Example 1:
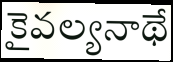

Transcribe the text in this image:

కైవల్యనాథే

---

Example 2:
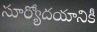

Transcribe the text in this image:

సూర్యోదయానికీ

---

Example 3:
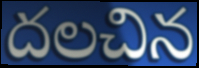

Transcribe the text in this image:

దలచిన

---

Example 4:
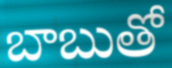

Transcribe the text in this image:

బాబుతో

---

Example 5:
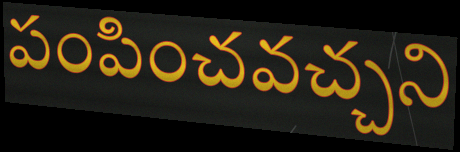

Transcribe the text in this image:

పంపించవచ్చని